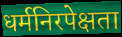
धर्मनिरपेक्षता